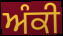
ਅੰਕੀ